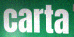
carta